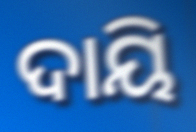
ଦାୟି